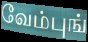
வேம்புங்